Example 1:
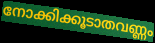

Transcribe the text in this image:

നോക്കിക്കൂടാതവണ്ണം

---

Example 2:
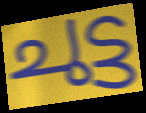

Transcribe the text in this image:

ചുട്ട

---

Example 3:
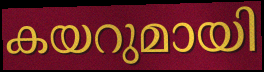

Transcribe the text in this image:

കയറുമായി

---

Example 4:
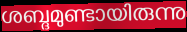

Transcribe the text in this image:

ശബ്ദമുണ്ടായിരുന്നു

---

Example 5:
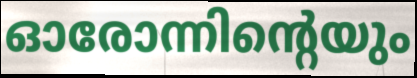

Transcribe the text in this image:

ഓരോന്നിന്റെയും